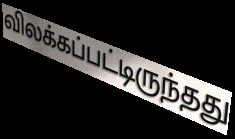
விலக்கப்பட்டிருந்தது